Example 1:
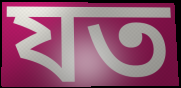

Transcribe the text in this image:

যত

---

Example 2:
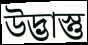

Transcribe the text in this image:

উদ্ভাস্তু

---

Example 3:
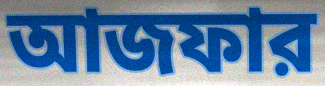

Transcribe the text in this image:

আজফার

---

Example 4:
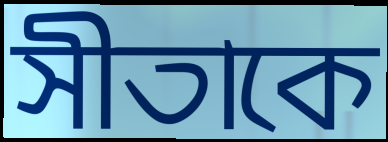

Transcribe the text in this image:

সীতাকে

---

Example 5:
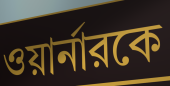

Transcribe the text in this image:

ওয়ার্নারকে